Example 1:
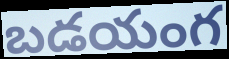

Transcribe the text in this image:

బడయంగ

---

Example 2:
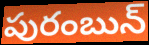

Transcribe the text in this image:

పురంబున్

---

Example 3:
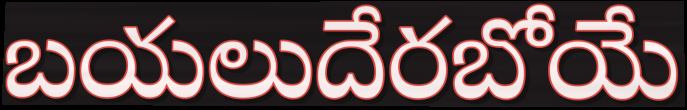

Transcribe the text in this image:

బయలుదేరబోయే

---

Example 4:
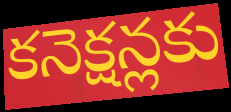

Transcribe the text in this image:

కనెక్షన్లకు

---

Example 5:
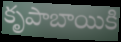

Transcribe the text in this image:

కృపాబాయికి